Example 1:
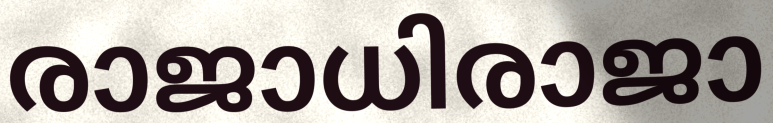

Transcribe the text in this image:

രാജാധിരാജാ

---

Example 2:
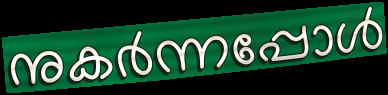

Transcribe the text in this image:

നുകർന്നപ്പോൾ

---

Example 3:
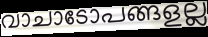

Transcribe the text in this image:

വാചാടോപങ്ങളല്ല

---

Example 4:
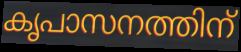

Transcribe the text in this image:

കൃപാസനത്തിന്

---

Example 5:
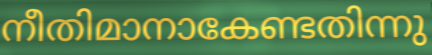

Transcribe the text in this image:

നീതിമാനാകേണ്ടതിന്നു